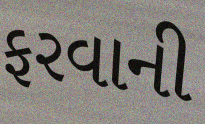
ફરવાની